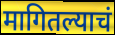
मागितल्याचं